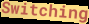
Switching